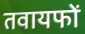
तवायफों